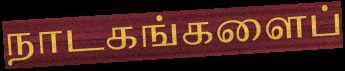
நாடகங்களைப்